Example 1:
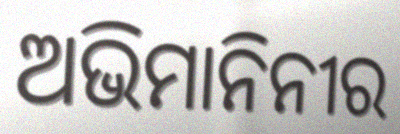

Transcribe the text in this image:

ଅଭିମାନିନୀର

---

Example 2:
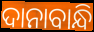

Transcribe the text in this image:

ଦାନାବାନ୍ଧି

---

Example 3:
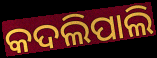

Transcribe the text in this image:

କଦଲିପାଲି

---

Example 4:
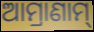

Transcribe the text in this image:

ଆମ୍ରାଣାମ୍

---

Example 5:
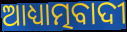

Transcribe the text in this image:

ଆଧ୍ୟାତ୍ମବାଦୀ